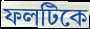
ফলটিকে